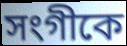
সংগীকে